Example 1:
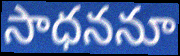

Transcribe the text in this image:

సాధననూ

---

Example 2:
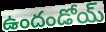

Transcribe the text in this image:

ఉందండోయ్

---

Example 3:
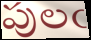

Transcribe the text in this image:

పులఁ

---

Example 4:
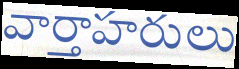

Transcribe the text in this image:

వార్తాహరులు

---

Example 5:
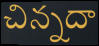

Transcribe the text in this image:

చిన్నదా